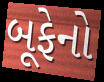
બૂફેનો